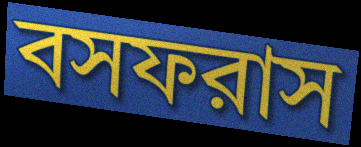
বসফরাস